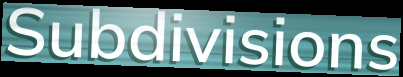
Subdivisions